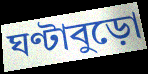
ঘণ্টাবুড়ো